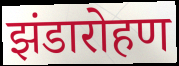
झंडारोहण